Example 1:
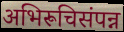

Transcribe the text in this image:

अभिरूचिसंपन्न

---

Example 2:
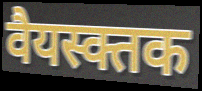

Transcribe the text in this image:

वैयस्क्तक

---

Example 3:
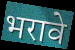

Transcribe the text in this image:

भरावे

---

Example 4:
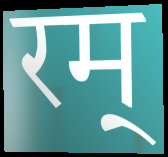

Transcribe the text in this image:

रम्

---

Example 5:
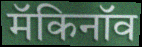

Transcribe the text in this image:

मॅकिनॉव